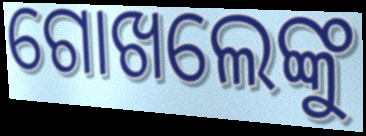
ଗୋଖଲେଙ୍କୁ